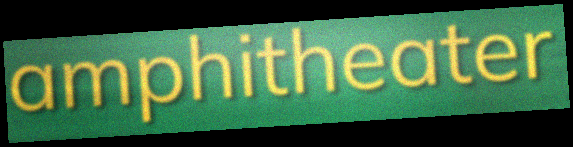
amphitheater